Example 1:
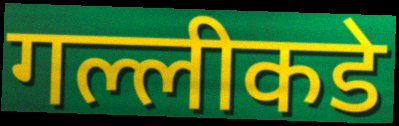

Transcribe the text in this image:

गल्लीकडे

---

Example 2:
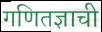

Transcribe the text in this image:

गणितज्ञाची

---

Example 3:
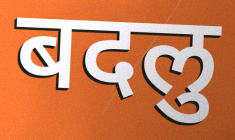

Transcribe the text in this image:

बदलु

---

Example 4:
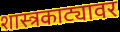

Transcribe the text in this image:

शास्त्रकाट्यावर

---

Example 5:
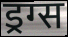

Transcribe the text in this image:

ड्रग्स